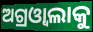
ଅଗ୍ରଓ୍ୱାଲାକୁ